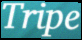
Tripe